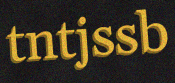
tntjssb